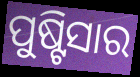
ପୁଷ୍ଟିସାର